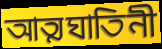
আত্মঘাতিনী